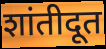
शांतीदूत